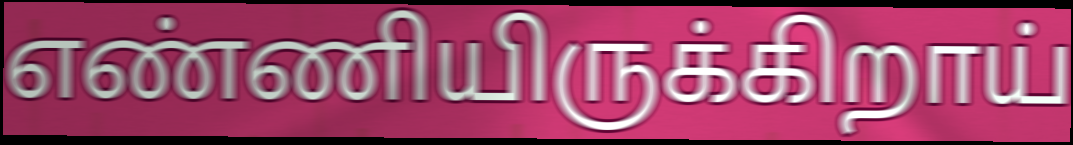
எண்ணியிருக்கிறாய்